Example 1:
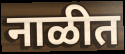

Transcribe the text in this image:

नाळीत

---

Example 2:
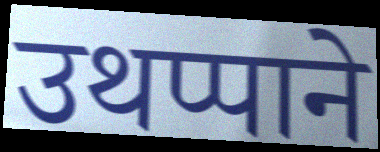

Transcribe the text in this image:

उथप्पाने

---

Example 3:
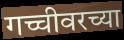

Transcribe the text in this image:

गच्चीवरच्या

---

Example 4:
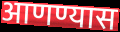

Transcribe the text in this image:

आणण्यास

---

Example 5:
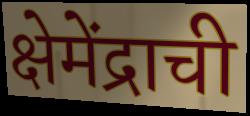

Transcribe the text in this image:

क्षेमेंद्राची